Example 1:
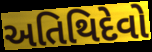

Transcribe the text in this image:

અતિથિદેવો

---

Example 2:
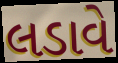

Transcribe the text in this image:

લડાવે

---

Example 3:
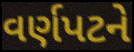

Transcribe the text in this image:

વર્ણપટને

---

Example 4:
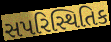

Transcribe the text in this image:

સપરિસ્થિતિક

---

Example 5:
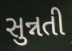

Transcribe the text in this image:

સુન્નતી